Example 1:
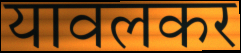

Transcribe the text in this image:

यावलकर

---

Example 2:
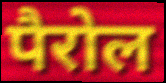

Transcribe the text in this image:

पैरोल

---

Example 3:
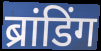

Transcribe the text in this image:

ब्रांडिंग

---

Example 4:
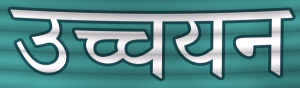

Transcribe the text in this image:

उच्चयन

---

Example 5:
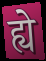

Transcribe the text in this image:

ह्ये